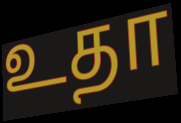
உதா